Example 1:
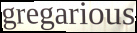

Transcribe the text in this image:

gregarious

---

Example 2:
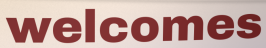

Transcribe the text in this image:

welcomes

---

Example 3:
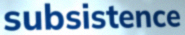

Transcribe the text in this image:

subsistence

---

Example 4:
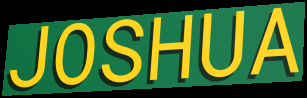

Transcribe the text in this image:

JOSHUA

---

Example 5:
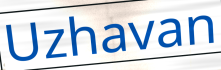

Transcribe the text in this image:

Uzhavan